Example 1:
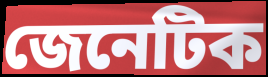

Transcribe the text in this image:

জেনেটিক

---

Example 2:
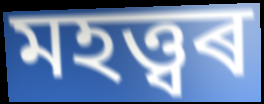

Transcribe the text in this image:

মহত্ত্বৰ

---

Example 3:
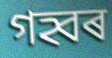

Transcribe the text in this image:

গহ্বৰ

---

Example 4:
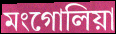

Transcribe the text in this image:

মংগোলিয়া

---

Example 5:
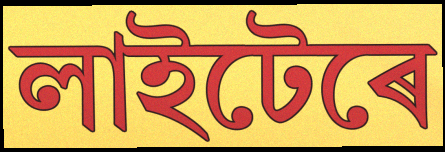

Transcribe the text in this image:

লাইটেৰে